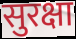
सुरक्षा